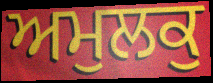
ਅਮੁਲਕੁ